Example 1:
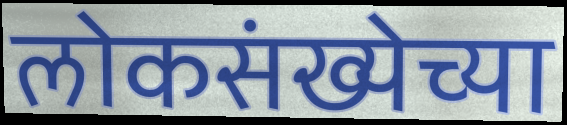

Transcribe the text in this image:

लोकसंख्‍येच्‍या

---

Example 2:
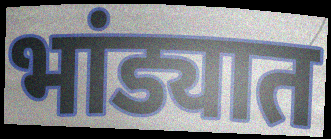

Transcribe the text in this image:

भांड्यात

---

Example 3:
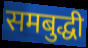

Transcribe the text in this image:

समबुद्धी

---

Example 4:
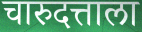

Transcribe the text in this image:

चारुदत्ताला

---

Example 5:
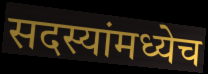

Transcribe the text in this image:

सदस्यांमध्येच